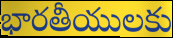
భారతీయులకు